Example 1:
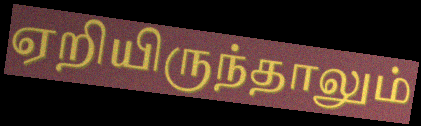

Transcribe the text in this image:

ஏறியிருந்தாலும்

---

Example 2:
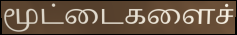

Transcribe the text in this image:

மூட்டைகளைச்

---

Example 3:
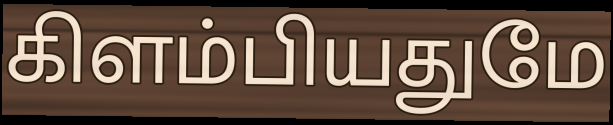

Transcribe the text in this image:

கிளம்பியதுமே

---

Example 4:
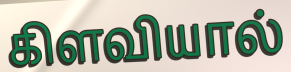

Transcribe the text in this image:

கிளவியால்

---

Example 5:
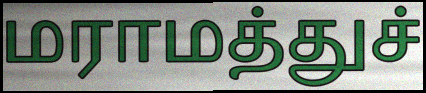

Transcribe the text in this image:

மராமத்துச்